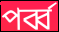
পর্ব্ব